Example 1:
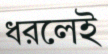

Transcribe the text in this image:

ধরলেই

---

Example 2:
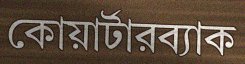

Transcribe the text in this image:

কোয়ার্টারব্যাক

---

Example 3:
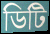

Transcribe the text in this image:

ডিটি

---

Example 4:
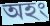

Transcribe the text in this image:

অহং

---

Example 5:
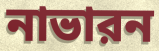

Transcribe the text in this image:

নাভারন